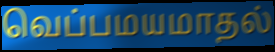
வெப்பமயமாதல்